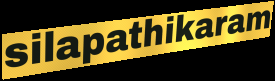
silapathikaram